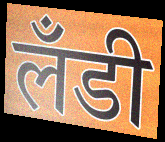
लँडी